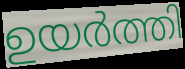
ഉയർത്തി